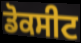
ਡੋਕਸੀਟ